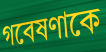
গবেষণাকে